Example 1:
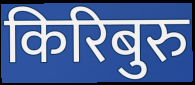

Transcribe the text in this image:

किरिबुरु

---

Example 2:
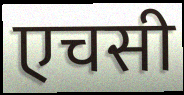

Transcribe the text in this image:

एचसी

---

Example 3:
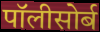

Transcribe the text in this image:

पॉलीसोर्ब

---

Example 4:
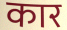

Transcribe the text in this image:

कार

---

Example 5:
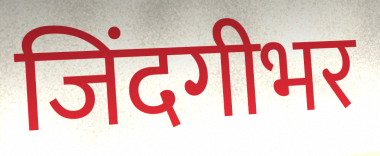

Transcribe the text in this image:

जिंदगीभर